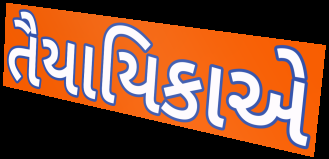
તૈયાયિકાએ